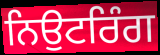
ਨਿਉਟਰਿੰਗ